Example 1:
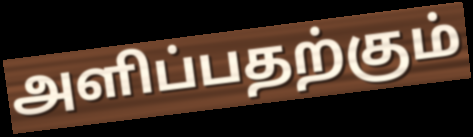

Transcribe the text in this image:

அளிப்பதற்கும்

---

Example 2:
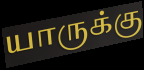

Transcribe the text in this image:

யாருக்கு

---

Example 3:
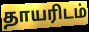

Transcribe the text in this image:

தாயரிடம்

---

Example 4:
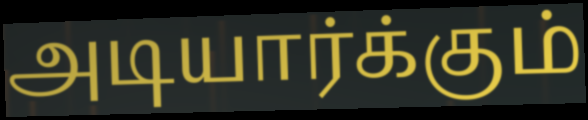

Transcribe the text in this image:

அடியார்க்கும்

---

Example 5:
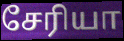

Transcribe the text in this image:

சேரியா